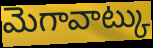
మెగావాట్కు